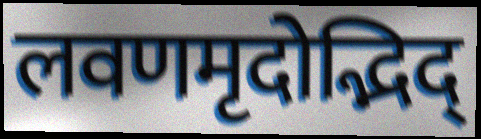
लवणमृदोद्भिद्